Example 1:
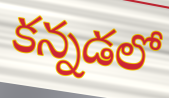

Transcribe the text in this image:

కన్నడలో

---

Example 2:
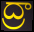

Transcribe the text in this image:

ద్రా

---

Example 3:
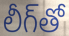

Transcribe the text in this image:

లీగ్‌తో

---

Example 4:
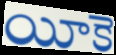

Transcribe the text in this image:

యీకె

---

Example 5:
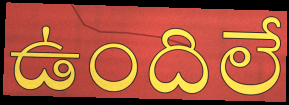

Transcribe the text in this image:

ఉందిలే